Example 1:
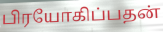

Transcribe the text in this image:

பிரயோகிப்பதன்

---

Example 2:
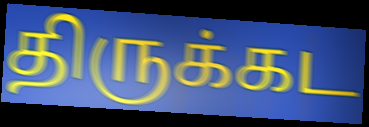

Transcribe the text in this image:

திருக்கட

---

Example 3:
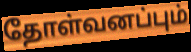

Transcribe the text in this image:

தோள்வனப்பும்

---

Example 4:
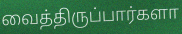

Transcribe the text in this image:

வைத்திருப்பார்களா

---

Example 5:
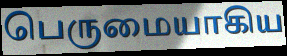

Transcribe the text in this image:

பெருமையாகிய